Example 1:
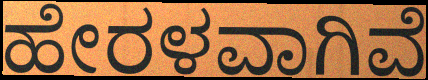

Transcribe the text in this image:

ಹೇರಳವಾಗಿವೆ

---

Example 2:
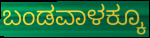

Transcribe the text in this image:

ಬಂಡವಾಳಕ್ಕೂ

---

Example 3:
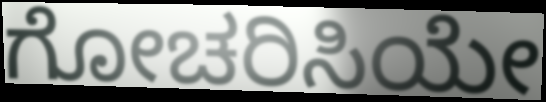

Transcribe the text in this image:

ಗೋಚರಿಸಿಯೇ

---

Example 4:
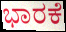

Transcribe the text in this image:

ಭಾರಕೆ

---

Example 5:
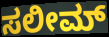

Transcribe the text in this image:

ಸಲೀಮ್